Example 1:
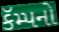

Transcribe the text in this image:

કૅમ્પનો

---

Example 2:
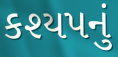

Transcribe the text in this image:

કશ્યપનું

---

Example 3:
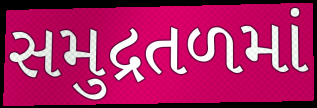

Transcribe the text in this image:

સમુદ્રતળમાં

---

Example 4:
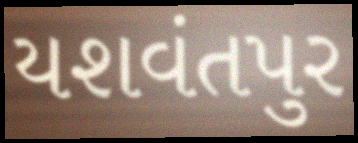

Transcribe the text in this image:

યશવંતપુર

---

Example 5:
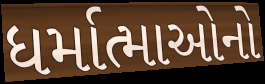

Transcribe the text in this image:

ધર્માત્માઓનો